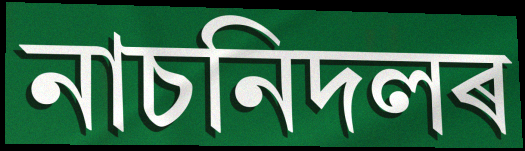
নাচনিদলৰ